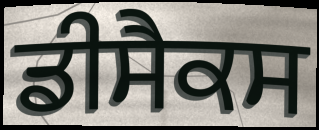
ਡੀਸੈਕਸ